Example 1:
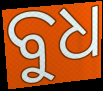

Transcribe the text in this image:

ବୁଧ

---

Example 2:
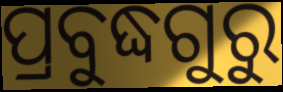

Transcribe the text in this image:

ପ୍ରବୁଦ୍ଧଗୁରୁ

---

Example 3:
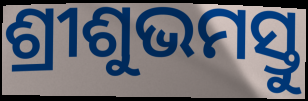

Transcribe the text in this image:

ଶ୍ରୀଶୁଭମସ୍ତୁ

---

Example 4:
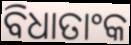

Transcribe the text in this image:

ବିଧାତାଂକ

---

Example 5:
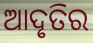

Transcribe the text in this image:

ଆଦୃତିର